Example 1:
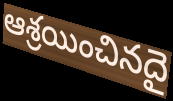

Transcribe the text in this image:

ఆశ్రయించినదై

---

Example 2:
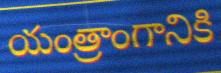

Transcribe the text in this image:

యంత్రాంగానికి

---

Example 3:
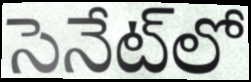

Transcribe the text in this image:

సెనేట్‌లో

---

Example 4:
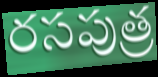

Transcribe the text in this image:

రసపుత్ర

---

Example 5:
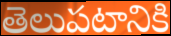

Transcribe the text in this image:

తెలుపటానికి